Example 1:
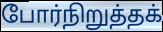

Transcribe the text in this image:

போர்நிறுத்தக்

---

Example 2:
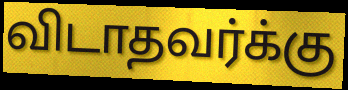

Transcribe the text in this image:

விடாதவர்க்கு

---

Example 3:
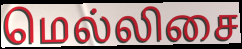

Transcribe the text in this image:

மெல்லிசை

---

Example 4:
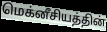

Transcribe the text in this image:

மெக்னீசியத்தின்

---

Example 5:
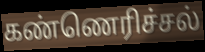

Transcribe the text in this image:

கண்ணெரிச்சல்